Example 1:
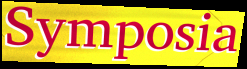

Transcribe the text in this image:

Symposia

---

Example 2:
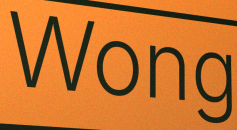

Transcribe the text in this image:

Wong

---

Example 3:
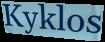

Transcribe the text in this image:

Kyklos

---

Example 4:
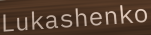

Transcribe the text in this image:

Lukashenko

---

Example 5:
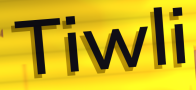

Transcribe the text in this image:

Tiwli